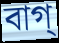
বাগ্